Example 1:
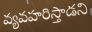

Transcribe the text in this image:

వ్యవహరిస్తాడని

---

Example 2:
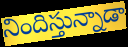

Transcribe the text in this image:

నిందిస్తున్నాడా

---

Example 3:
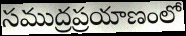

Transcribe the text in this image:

సముద్రప్రయాణంలో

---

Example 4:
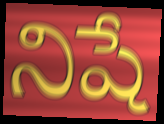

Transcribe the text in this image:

నిషే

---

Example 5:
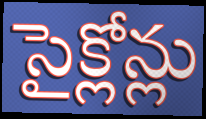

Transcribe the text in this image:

సైక్లోన్లు